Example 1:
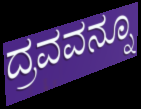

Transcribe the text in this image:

ದ್ರವವನ್ನೂ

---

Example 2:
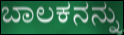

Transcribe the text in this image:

ಬಾಲಕನನ್ನು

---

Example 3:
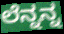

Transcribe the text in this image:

ಲೆನ್ನನ್ನ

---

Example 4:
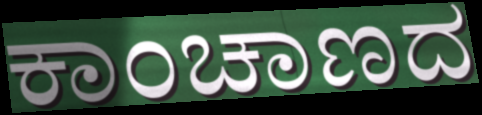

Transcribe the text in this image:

ಕಾಂಚಾಣದ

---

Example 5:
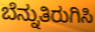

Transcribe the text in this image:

ಬೆನ್ನುತಿರುಗಿಸಿ